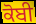
ਕੋਬੀ